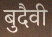
बुदैवी